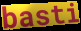
basti